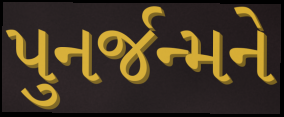
પુનર્જન્મને